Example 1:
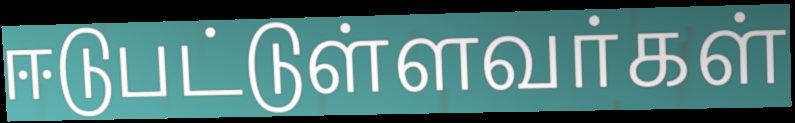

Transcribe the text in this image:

ஈடுபட்டுள்ளவர்கள்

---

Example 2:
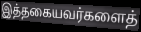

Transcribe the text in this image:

இத்தகையவர்களைத்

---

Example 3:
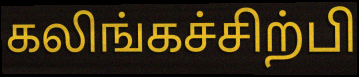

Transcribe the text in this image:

கலிங்கச்சிற்பி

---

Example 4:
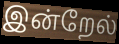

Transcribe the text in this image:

இன்றேல்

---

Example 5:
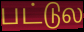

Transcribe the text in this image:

பட்டுல